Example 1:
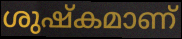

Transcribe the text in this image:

ശുഷ്കമാണ്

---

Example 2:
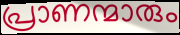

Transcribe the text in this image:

പ്രാണന്മാരും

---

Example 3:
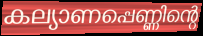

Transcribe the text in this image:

കല്യാണപ്പെണ്ണിന്റെ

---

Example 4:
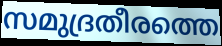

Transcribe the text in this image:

സമുദ്രതീരത്തെ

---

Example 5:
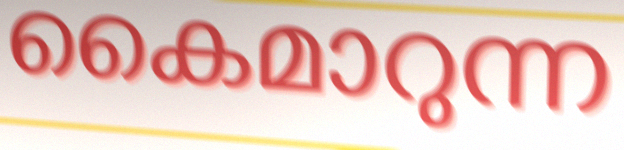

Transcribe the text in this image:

കൈമാറുന്ന